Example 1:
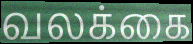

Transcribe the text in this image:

வலக்கை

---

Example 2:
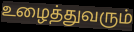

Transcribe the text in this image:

உழைத்துவரும்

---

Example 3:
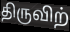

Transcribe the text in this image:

திருவிற்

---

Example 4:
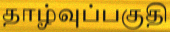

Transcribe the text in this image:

தாழ்வுப்பகுதி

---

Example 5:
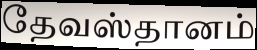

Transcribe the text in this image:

தேவஸ்தானம்